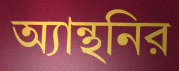
অ্যান্থনির